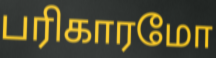
பரிகாரமோ